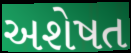
અશેષત